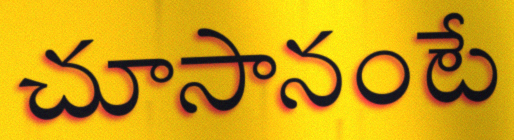
చూసానంటే